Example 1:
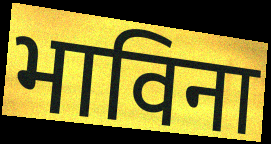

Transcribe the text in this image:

भाविना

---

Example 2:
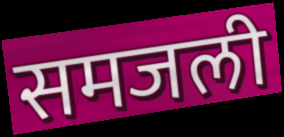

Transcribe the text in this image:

समजली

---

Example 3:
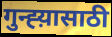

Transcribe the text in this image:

गुन्ह्य़ासाठी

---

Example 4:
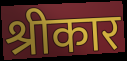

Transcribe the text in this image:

श्रीकार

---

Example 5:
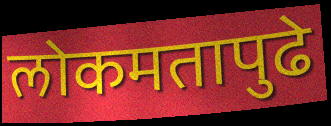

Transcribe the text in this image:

लोकमतापुढे